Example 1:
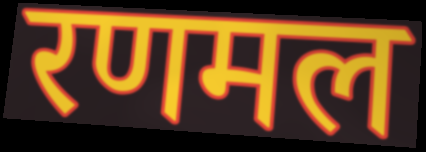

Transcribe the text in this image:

रणमल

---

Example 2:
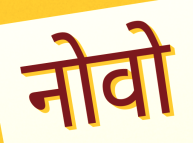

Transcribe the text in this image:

नोवो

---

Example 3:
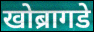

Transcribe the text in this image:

खोब्रागडे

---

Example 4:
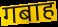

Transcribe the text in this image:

गबाह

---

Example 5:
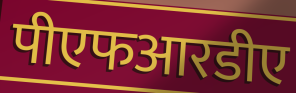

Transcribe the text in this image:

पीएफआरडीए